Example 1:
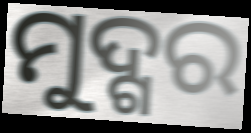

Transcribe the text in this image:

ମୁଦ୍ଗର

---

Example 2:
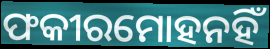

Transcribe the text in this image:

ଫକୀରମୋହନହିଁ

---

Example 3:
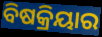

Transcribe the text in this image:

ବିଷକ୍ରିୟାର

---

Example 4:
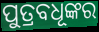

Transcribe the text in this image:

ପୁତ୍ରବଧୂଙ୍କର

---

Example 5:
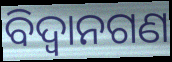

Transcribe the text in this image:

ବିଦ୍ଵାନଗଣ